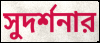
সুদর্শনার